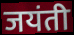
जयंती